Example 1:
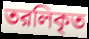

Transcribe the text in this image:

তরলিকৃত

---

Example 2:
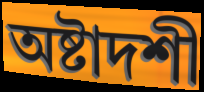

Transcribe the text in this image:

অষ্টাদশী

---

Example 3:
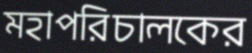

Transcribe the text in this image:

মহাপরিচালকের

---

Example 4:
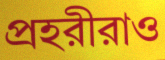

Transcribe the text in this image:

প্রহরীরাও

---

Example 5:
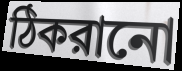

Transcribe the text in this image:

ঠিকরানো